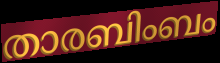
താരബിംബം